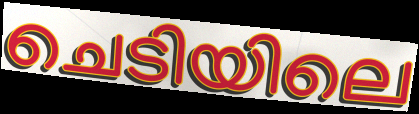
ചെടിയിലെ